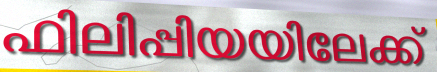
ഫിലിപ്പിയയിലേക്ക്